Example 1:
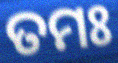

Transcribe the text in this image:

ତମଃ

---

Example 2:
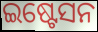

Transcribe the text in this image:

ଇଷ୍ଟେସନ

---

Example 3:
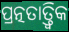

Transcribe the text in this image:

ପ୍ରତ୍ନତାତ୍ତ୍ଵିକ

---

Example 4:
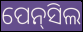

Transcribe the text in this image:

ପେନ୍‌ସିଲ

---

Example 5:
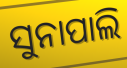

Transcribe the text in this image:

ସୁନାପାଲି